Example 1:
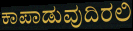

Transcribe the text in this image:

ಕಾಪಾಡುವುದಿರಲಿ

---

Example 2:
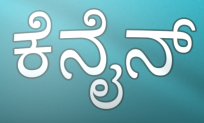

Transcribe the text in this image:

ಕೆನೈನ್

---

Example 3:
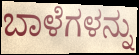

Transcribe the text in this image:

ಬಾಳೆಗಳನ್ನು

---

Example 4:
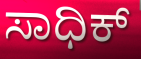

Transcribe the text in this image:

ಸಾಧಿಕ್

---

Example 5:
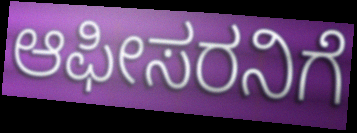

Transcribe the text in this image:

ಆಫೀಸರನಿಗೆ